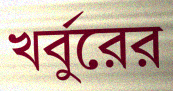
খর্বুরের